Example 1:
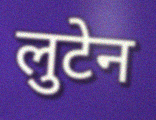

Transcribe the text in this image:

लुटेन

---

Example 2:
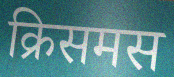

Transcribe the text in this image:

क्रिसमस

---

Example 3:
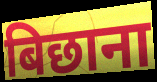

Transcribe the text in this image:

बिछाना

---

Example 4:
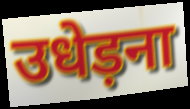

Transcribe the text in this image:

उधेड़ना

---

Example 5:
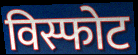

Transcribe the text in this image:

विस्फोट